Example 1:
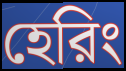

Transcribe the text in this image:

হেরিং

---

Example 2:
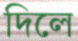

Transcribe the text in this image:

দিলে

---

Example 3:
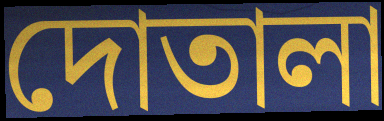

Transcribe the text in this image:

দোতালা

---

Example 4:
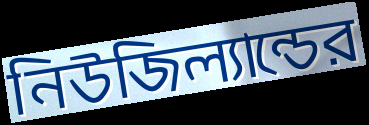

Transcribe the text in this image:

নিউজিল্যান্ডের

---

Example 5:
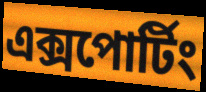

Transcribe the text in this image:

এক্সপোর্টিং